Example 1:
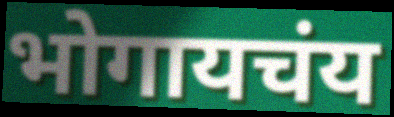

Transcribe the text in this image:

भोगायचंय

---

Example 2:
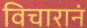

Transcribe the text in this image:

विचारानं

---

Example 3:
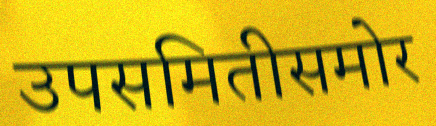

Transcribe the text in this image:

उपसमितीसमोर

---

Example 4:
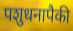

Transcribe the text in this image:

पशुधनापैकी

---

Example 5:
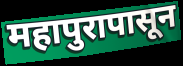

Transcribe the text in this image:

महापुरापासून